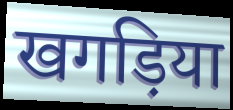
खगड़िया